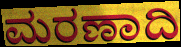
ಮರಣಾದಿ